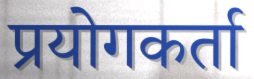
प्रयोगकर्ता